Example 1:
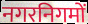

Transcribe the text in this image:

नगरनिगमों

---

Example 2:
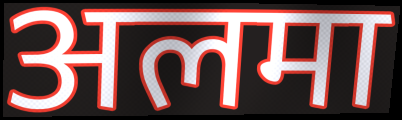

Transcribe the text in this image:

अलमा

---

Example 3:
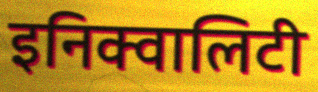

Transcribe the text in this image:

इनिक्वालिटी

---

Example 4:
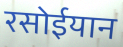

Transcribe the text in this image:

रसोईयान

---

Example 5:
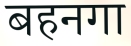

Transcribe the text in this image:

बहनगा